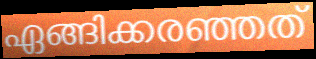
ഏങ്ങിക്കരഞ്ഞത്